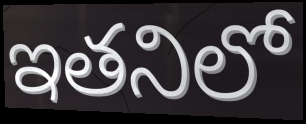
ఇతనిలో